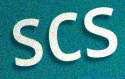
scs